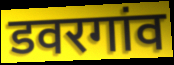
डवरगांव